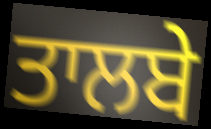
ਤਾਲਬੇ